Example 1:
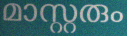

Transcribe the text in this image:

മാസ്റ്റരും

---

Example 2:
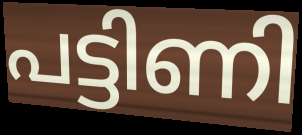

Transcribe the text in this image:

പട്ടിണി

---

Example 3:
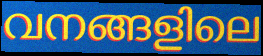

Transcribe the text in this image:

വനങ്ങളിലെ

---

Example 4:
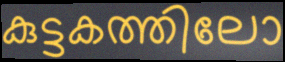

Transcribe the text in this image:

കുട്ടകത്തിലോ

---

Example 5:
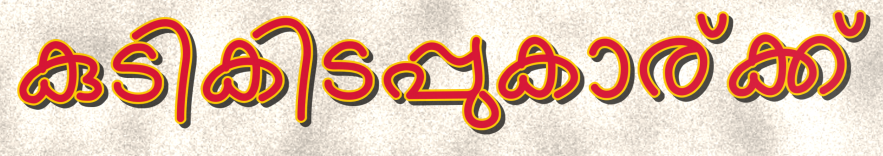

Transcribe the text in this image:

കുടികിടപ്പുകാര്ക്ക്